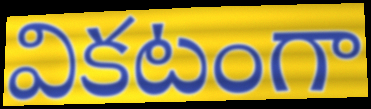
వికటంగా